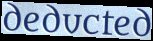
deducted